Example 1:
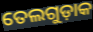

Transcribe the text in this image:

ତେଲଗୁଡ଼ାକ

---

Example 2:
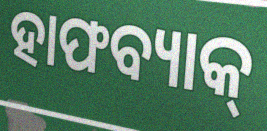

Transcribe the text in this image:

ହାଫବ୍ୟାକ୍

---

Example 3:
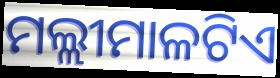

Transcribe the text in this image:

ମଲ୍ଲୀମାଳଟିଏ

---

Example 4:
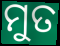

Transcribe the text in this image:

ମୁତ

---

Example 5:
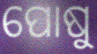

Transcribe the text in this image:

ପୋଷୁ